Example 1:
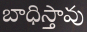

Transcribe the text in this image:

బాధిస్తావు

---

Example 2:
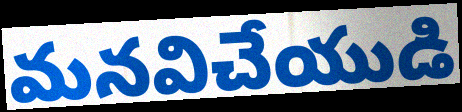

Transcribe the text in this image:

మనవిచేయుడి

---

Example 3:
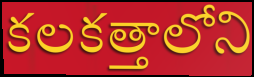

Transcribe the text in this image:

కలకత్తాలోని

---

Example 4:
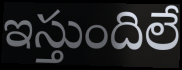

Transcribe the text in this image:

ఇస్తుందిలే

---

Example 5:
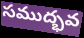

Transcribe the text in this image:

సముద్భవ